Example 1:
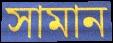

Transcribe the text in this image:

সামান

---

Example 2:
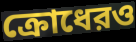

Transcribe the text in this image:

ক্রোধেরও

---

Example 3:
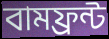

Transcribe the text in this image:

বামফ্রন্ট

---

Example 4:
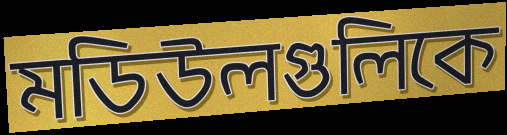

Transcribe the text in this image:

মডিউলগুলিকে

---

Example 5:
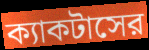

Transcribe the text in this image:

ক্যাকটাসের